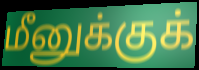
மீனுக்குக்